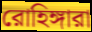
রোহিঙ্গারা